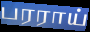
பரராய்